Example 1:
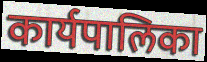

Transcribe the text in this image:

कार्यपालिका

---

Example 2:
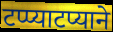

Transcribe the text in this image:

टप्प्याटप्याने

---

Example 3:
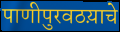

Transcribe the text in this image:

पाणीपुरवठय़ाचे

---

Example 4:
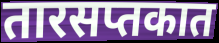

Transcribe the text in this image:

तारसप्तकात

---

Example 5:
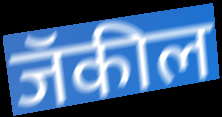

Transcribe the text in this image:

जॅकील